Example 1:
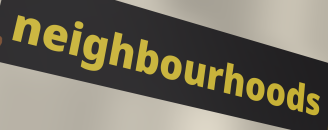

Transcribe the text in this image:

neighbourhoods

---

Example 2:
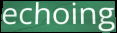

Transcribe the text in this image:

echoing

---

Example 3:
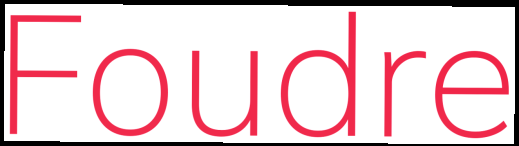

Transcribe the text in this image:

Foudre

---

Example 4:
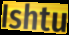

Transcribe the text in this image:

Ishtu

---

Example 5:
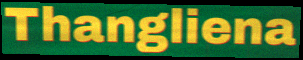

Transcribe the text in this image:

Thangliena